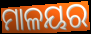
ମାଳୟର